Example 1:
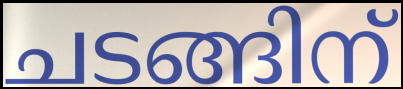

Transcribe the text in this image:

ചടങ്ങിന്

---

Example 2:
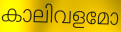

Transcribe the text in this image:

കാലിവളമോ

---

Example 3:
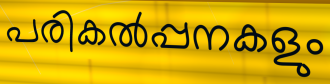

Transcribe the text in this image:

പരികൽപ്പനകളും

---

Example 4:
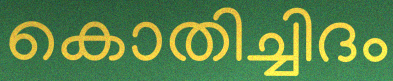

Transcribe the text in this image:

കൊതിച്ചിദം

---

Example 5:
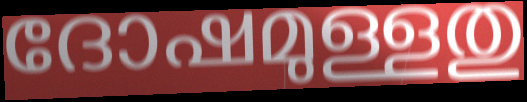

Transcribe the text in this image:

ദോഷമുള്ളതു